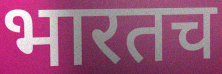
भारतच